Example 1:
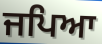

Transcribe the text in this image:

ਜਪਿਆ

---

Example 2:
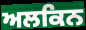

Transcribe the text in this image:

ਅਲਕਿਨ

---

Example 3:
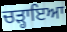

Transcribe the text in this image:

ਚੜ੍ਹਾਇਆ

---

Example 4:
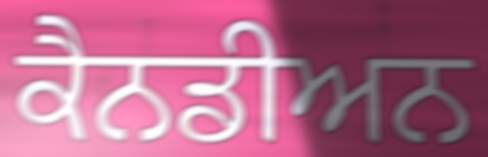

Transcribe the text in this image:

ਕੈਨਡੀਅਨ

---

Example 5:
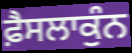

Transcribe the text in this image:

ਫ਼ੈਸਲਾਕੁੰਨ